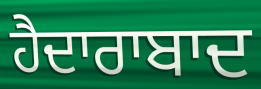
ਹੈਦਾਰਾਬਾਦ